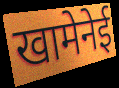
खामेनेई